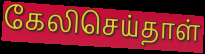
கேலிசெய்தாள்